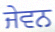
ਜੇਵਨ